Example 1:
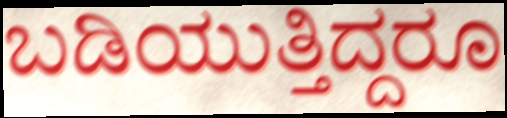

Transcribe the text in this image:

ಬಡಿಯುತ್ತಿದ್ದರೂ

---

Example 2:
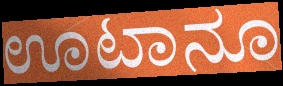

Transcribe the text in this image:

ಊಟಾನೂ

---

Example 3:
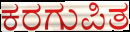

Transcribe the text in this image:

ಕರಗುಪಿತ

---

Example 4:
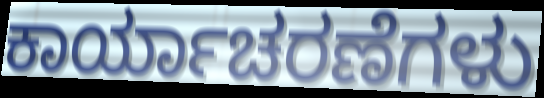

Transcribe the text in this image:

ಕಾರ್ಯಾಚರಣೆಗಳು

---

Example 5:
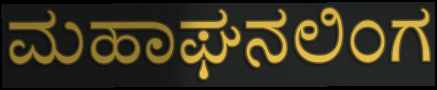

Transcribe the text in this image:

ಮಹಾಘನಲಿಂಗ